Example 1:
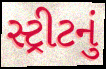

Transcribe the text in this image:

સ્ટ્રીટનું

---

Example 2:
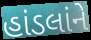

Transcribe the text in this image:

હાંડલાંને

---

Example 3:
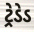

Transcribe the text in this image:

ટ્રેડેડ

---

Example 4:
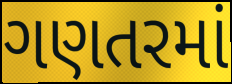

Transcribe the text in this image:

ગણતરમાં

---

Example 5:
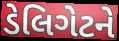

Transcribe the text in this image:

ડેલિગેટને